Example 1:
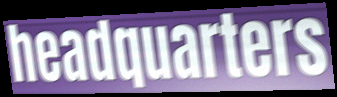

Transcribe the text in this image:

headquarters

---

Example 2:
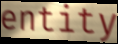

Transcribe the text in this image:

entity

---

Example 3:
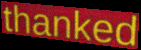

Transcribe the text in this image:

thanked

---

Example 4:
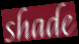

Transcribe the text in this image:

shade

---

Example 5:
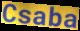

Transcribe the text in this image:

Csaba